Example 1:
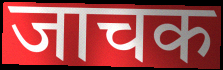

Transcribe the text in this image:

जाचक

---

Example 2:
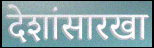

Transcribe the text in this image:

देशांसारखा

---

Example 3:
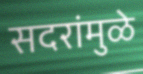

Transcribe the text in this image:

सदरांमुळे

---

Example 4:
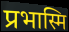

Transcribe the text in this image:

प्रभास्मि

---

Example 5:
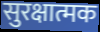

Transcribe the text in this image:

सुरक्षात्मक